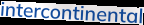
intercontinental